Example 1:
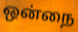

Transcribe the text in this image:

ஒன்நை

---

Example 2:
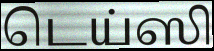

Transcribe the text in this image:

டெய்ஸி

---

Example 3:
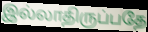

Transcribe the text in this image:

இல்லாதிருப்பதே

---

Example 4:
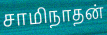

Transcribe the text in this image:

சாமிநாதன்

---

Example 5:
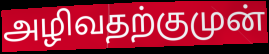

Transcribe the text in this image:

அழிவதற்குமுன்